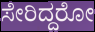
ಸೇರಿದ್ದರೋ